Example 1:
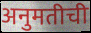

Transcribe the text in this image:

अनुमतीची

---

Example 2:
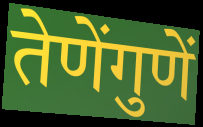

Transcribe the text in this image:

तेणेंगुणें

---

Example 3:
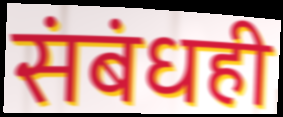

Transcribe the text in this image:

संबंधही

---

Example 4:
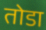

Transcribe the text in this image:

तोडा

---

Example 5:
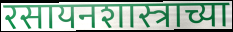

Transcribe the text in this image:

रसायनशास्त्राच्या